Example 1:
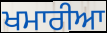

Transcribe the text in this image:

ਖਮਾਰੀਆ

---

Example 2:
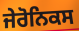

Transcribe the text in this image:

ਜੇਰੋਨਿਕਸ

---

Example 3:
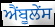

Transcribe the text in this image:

ਐਂਬੂਲੇਂਸ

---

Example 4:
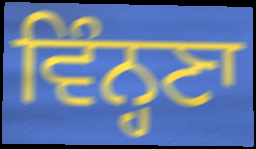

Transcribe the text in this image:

ਵਿੰਨ੍ਹਣਾ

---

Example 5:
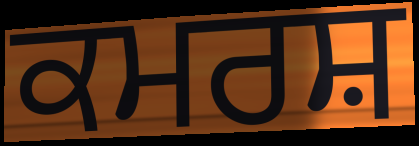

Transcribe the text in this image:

ਕਮਰਸ਼